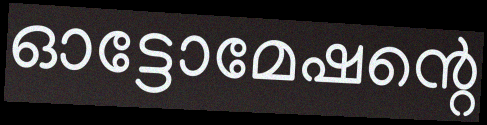
ഓട്ടോമേഷന്റെ